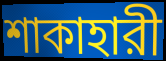
শাকাহারী